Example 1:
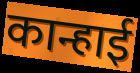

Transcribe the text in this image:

कान्हाई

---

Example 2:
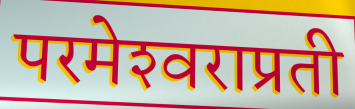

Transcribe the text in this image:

परमेश्वराप्रती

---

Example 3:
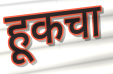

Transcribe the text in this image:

हूकचा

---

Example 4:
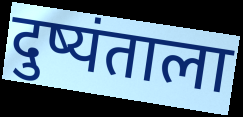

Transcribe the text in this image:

दुष्यंताला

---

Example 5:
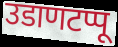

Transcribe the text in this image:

उडाणटप्पू